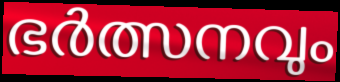
ഭർത്സനവും